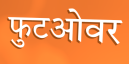
फुटओवर